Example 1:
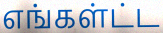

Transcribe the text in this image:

எங்கள்ட்ட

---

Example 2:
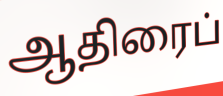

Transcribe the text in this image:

ஆதிரைப்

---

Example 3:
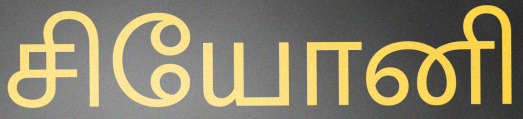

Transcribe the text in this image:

சியோனி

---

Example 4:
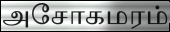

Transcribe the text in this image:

அசோகமரம்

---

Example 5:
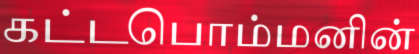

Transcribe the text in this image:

கட்டபொம்மனின்